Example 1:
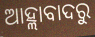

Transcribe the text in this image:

ଆହ୍ଲାବାଦରୁ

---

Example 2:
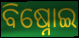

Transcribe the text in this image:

ବିଷ୍ନୋଇ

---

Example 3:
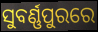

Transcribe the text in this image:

ସୁବର୍ଣ୍ଣପୁରରେ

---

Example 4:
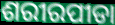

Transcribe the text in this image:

ଶରୀରପୀଡା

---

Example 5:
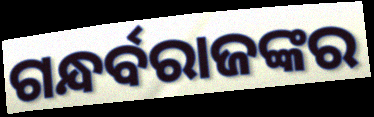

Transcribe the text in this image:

ଗନ୍ଧର୍ବରାଜଙ୍କର